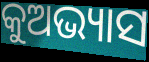
କୁଅଭ୍ୟାସ